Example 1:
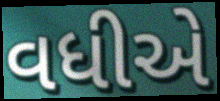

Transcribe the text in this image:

વધીએ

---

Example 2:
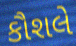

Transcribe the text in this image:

કૌશલે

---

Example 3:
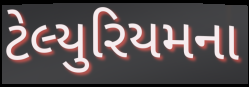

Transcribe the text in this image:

ટેલ્યુરિયમના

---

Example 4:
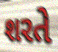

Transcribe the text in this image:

શરતે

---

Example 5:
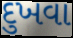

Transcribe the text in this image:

દુખવા